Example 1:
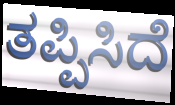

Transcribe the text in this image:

ತಪ್ಪಿಸಿದೆ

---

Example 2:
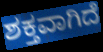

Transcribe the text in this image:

ಶಕ್ತವಾಗಿದೆ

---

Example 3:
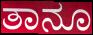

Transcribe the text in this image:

ತಾನೂ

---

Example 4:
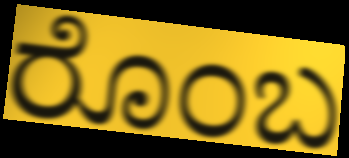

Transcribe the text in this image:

ರೊಂಬ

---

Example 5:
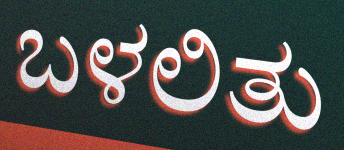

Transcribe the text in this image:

ಬಳಲಿತು